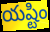
యష్టిం